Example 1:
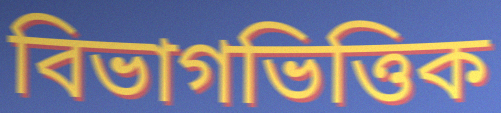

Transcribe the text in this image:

বিভাগভিত্তিক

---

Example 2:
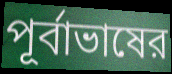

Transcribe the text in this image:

পূর্বাভাষের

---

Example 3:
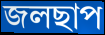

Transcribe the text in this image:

জলছাপ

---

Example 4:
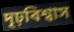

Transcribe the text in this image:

দৃঢ়বিশ্বাস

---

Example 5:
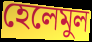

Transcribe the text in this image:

হেলেমুল